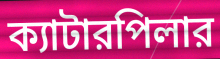
ক্যাটারপিলার